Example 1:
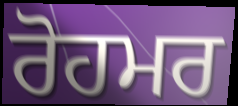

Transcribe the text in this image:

ਰੋਹਮਰ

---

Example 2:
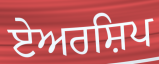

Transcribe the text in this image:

ਏਅਰਸ਼ਿਪ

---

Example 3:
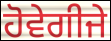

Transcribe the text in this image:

ਹੋਵੇਗੀਜੇ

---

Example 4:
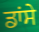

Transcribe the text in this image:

ਡਾਂਸੇ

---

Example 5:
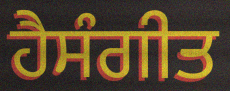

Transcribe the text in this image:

ਹੈਸੰਗੀਤ